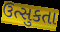
ઉત્સુકતા